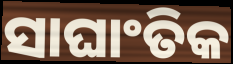
ସାଘାଂତିକ